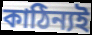
কাঠিন্যই